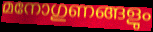
മനോഗുണങ്ങളും